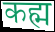
कह्म